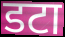
डटा